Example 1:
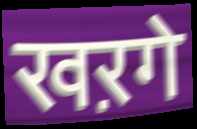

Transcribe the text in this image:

खऱगे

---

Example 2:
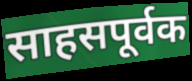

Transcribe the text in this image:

साहसपूर्वक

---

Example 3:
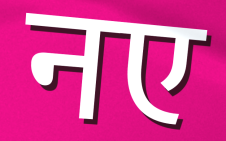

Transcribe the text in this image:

नए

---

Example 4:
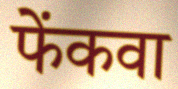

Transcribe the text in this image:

फेंकवा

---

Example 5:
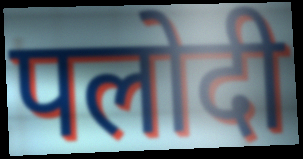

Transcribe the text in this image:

पलोदी